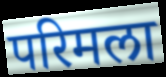
परिमला